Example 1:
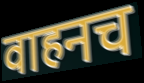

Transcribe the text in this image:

वाहनच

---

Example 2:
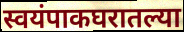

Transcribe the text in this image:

स्वयंपाकघरातल्या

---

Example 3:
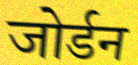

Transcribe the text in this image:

जोर्डन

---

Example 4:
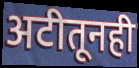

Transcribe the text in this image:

अटीतूनही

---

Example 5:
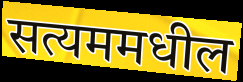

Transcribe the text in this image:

सत्यममधील